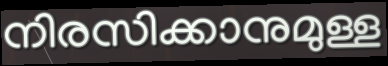
നിരസിക്കാനുമുള്ള